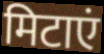
मिटाएं